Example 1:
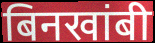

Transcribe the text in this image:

बिनखांबी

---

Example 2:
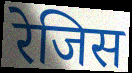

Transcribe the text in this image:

रेजिस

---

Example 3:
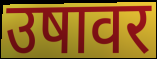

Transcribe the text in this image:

उषावर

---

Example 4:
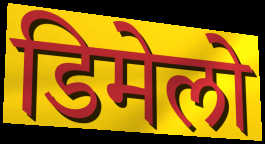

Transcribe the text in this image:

डिमेलो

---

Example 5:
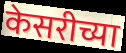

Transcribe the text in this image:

केसरीच्या